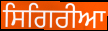
ਸਿਗਿਰੀਆ